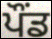
ਪੌਂਡ